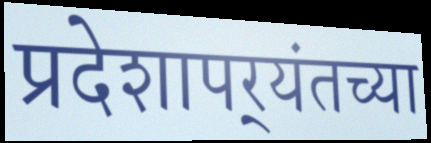
प्रदेशापर्यंतच्या